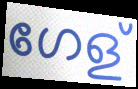
ഗേള്